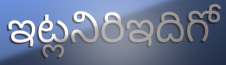
ఇట్లనిరిఇదిగో